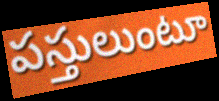
పస్తులుంటూ